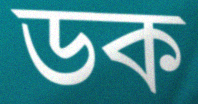
ডক